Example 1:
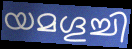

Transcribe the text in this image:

യമഗൂച്ചി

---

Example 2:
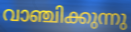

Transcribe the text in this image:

വാഞ്ചിക്കുന്നു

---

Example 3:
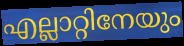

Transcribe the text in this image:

എല്ലാറ്റിനേയും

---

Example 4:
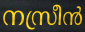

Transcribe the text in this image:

നസ്രീൻ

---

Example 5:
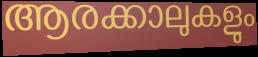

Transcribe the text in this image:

ആരക്കാലുകളും